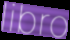
libro